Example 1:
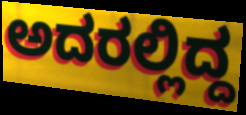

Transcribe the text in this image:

ಅದರಲ್ಲಿದ್ದ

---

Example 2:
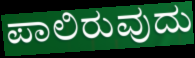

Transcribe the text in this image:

ಪಾಲಿರುವುದು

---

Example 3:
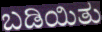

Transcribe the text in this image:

ಬಡಿಯಿತು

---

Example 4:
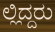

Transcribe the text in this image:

ಲ್ಲಿದ್ದರು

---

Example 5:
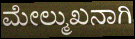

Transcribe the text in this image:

ಮೇಲ್ಮುಖನಾಗಿ